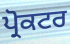
ਪ੍ਰੋਕਟਰ